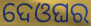
ଦେଓଘର